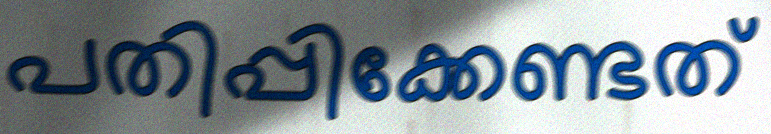
പതിപ്പിക്കേണ്ടത്